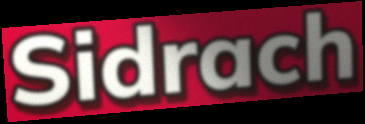
Sidrach